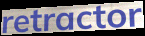
retractor